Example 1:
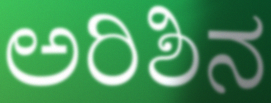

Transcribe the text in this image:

ಅರಿಶಿನ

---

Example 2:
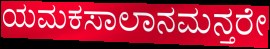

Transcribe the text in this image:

ಯಮಕಸಾಲಾನಮನ್ತರೇ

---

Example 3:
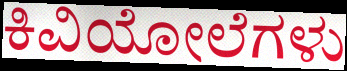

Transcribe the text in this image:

ಕಿವಿಯೋಲೆಗಳು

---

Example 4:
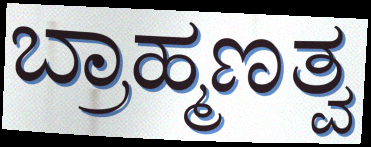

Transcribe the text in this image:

ಬ್ರಾಹ್ಮಣತ್ವ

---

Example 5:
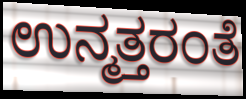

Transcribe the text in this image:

ಉನ್ಮತ್ತರಂತೆ